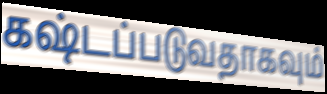
கஷ்டப்படுவதாகவும்